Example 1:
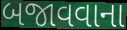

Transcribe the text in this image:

બજાવવાના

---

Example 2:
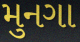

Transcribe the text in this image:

મુનગા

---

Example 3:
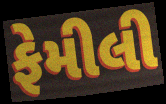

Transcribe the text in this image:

ફેમીલી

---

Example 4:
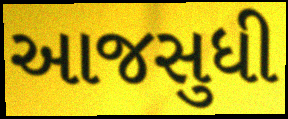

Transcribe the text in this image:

આજસુધી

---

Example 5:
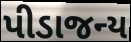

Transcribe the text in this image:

પીડાજન્ય